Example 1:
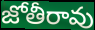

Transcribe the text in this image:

జోతీరావు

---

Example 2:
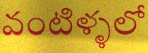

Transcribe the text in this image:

వంటిళ్ళలో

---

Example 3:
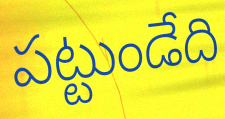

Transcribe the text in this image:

పట్టుండేది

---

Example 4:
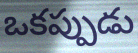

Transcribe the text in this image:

ఒకప్పుడు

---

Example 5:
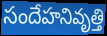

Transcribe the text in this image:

సందేహనివృత్తి